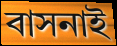
বাসনাই